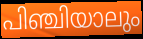
പിഞ്ചിയാലും